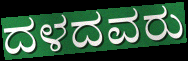
ದಳದವರು